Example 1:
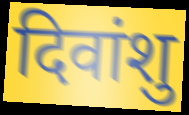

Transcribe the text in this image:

दिवांशु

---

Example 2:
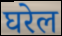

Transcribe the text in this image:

घरेल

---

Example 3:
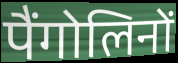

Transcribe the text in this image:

पैंगोलिनों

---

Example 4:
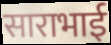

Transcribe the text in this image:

साराभाई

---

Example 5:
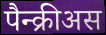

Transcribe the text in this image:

पैन्क्रीअस